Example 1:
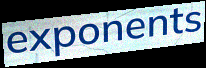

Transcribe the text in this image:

exponents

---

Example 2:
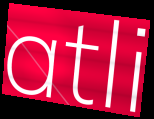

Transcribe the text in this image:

atli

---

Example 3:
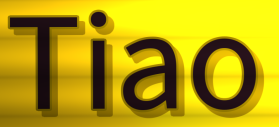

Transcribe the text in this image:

Tiao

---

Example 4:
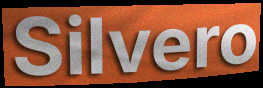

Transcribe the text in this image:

Silvero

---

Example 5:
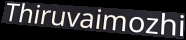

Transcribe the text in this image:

Thiruvaimozhi